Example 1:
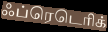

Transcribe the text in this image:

ஃப்ரெடெரிக்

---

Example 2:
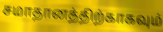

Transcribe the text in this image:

சமாதானத்திற்காகவும்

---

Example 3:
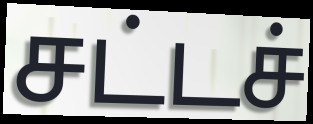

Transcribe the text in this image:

சட்டச்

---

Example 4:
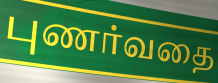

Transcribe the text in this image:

புணர்வதை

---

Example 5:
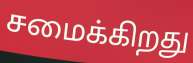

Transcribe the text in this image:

சமைக்கிறது